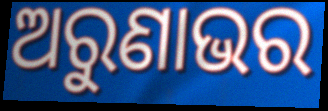
ଅରୁଣାଭର